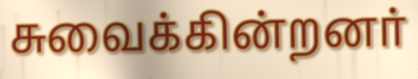
சுவைக்கின்றனர்